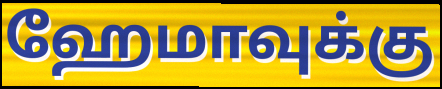
ஹேமாவுக்கு